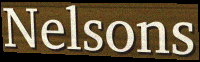
Nelsons